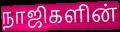
நாஜிகளின்